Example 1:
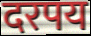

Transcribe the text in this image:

दरपय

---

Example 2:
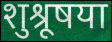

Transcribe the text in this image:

शुश्रूषया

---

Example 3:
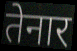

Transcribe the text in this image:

तेनार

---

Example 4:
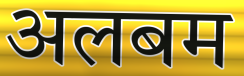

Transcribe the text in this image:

अलबम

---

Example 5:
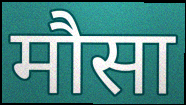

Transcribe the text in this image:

मौसा